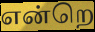
என்றெ